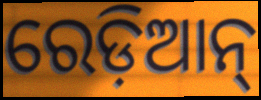
ରେଡ଼ିଆନ୍